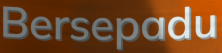
Bersepadu